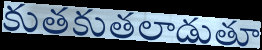
కుతకుతలాడుతూ